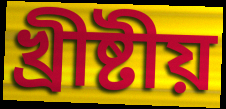
খ্ৰীষ্টীয়